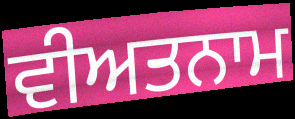
ਵੀਅਤਨਾਮ